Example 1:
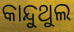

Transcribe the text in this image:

କାନ୍ଦୁଥୁଲ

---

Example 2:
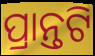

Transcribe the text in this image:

ପ୍ରାନ୍ତଟି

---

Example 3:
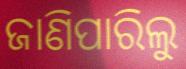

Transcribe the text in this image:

ଜାଣିପାରିଲୁ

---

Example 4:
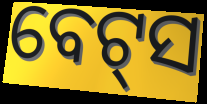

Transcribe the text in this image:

ବେଟ୍‌ସ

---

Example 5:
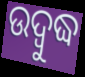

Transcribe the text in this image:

ଉଦ୍ୱୁଦ୍ଧ